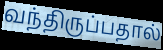
வந்திருப்பதால்